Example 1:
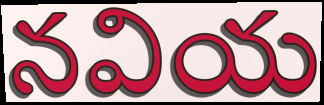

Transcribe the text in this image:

నవియ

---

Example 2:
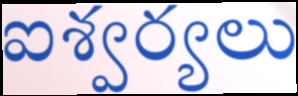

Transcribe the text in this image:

ఐశ్వర్యలు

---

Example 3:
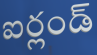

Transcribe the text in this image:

ఐర్లండ్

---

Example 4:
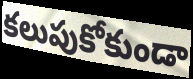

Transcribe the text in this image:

కలుపుకోకుండా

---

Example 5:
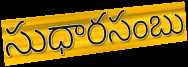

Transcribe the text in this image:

సుధారసంబు